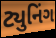
ટ્યુનિંગ